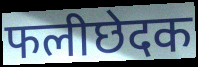
फलीछेदक